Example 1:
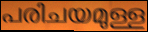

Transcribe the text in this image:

പരിചയമുള്ള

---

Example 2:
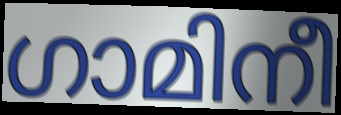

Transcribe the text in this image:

ഗാമിനീ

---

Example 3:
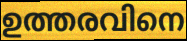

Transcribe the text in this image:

ഉത്തരവിനെ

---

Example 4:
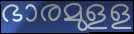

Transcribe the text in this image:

ഭാരമുളള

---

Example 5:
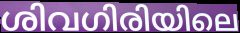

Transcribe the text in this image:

ശിവഗിരിയിലെ